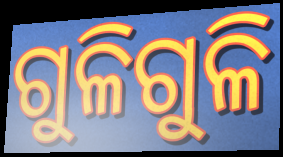
ଗୁଳିଗୁଳି